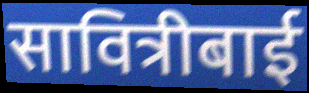
सावित्रीबाई